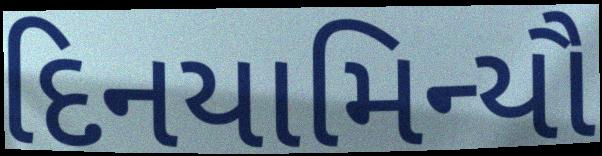
દિનયામિન્યૌ